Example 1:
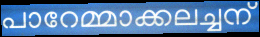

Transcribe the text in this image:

പാറേമ്മാക്കലച്ചന്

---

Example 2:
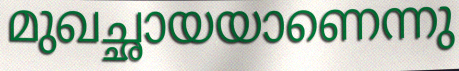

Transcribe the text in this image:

മുഖച്ഛായയാണെന്നു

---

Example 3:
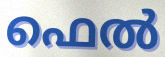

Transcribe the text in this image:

ഫെൽ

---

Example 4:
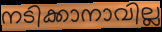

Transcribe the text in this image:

നടിക്കാനാവില്ല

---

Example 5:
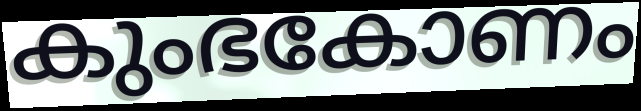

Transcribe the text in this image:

കുംഭകോണം